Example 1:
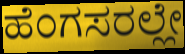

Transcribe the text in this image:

ಹೆಂಗಸರಲ್ಲೇ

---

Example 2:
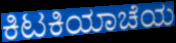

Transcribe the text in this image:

ಕಿಟಕಿಯಾಚೆಯ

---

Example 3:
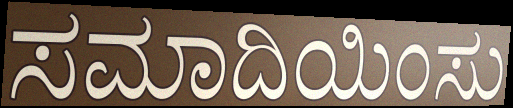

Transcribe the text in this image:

ಸಮಾದಿಯಿಂಸು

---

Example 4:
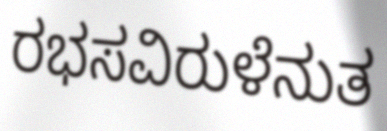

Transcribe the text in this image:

ರಭಸವಿರುಳೆನುತ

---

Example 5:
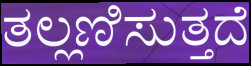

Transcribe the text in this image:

ತಲ್ಲಣಿಸುತ್ತದೆ